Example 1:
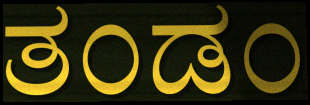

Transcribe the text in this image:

ತಂಡಂ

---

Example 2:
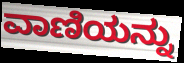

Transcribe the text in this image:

ವಾಣಿಯನ್ನು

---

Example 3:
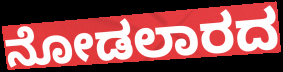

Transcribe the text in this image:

ನೋಡಲಾರದ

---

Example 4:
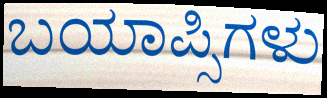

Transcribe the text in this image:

ಬಯಾಪ್ಸಿಗಳು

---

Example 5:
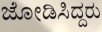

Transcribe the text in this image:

ಜೋಡಿಸಿದ್ದರು